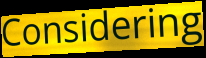
Considering